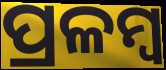
ପ୍ରଳମ୍ବ